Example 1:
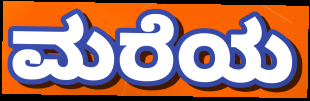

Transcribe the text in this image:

ಮರೆಯ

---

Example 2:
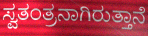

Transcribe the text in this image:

ಸ್ವತಂತ್ರನಾಗಿರುತ್ತಾನೆ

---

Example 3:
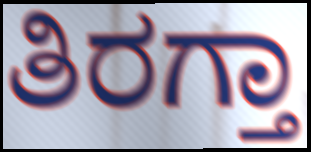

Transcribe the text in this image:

ತಿರಗ್ತಾ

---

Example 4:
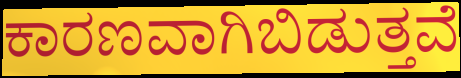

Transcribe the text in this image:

ಕಾರಣವಾಗಿಬಿಡುತ್ತವೆ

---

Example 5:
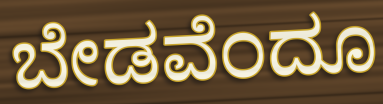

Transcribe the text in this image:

ಬೇಡವೆಂದೂ